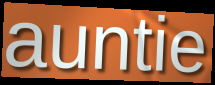
auntie